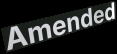
Amended